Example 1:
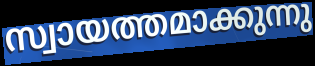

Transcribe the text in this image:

സ്വായത്തമാക്കുന്നു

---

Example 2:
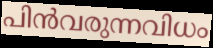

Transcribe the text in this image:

പിൻവരുന്നവിധം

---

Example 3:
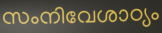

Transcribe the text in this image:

സംനിവേശാഠ്യം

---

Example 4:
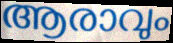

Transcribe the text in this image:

ആരാവും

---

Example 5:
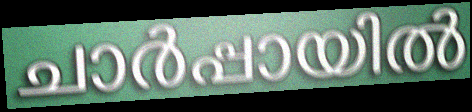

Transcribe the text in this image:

ചാർപ്പായിൽ